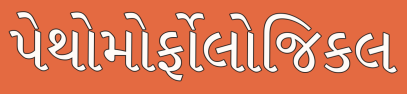
પેથોમોર્ફોલોજિકલ